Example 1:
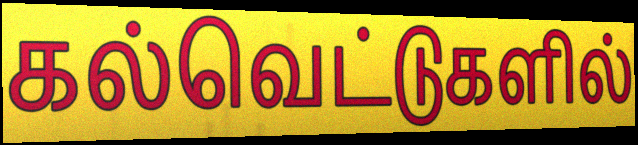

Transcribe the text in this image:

கல்வெட்டுகளில்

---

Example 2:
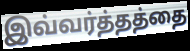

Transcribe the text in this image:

இவ்வர்த்தத்தை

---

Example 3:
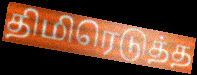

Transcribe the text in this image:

திமிரெடுத்த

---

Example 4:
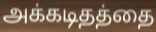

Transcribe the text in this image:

அக்கடிதத்தை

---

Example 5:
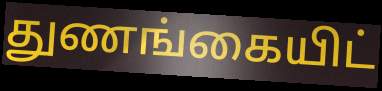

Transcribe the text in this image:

துணங்கையிட்